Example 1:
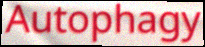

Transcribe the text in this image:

Autophagy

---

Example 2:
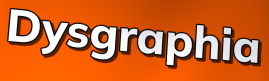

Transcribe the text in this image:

Dysgraphia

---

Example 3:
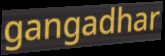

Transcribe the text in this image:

gangadhar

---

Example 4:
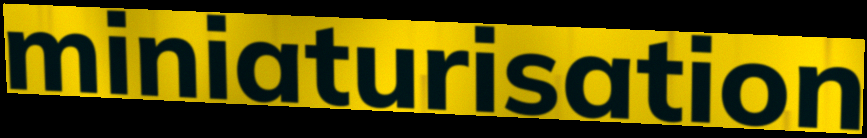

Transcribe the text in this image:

miniaturisation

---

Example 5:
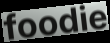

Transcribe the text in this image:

foodie